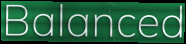
Balanced